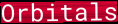
Orbitals